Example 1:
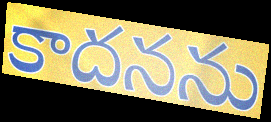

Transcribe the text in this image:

కాదనను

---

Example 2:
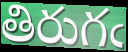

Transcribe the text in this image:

తిరుగఁ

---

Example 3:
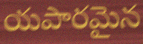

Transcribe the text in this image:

యపారమైన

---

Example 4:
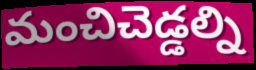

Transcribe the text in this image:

మంచిచెడ్డల్ని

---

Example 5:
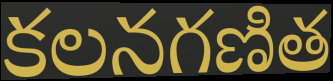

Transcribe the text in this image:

కలనగణిత